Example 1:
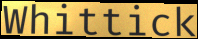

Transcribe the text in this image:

Whittick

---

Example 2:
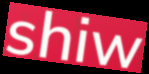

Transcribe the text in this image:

shiw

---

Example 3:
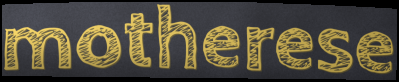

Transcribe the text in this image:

motherese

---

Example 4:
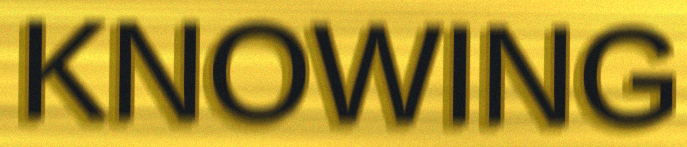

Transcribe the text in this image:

KNOWING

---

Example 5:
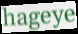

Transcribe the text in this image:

hageye